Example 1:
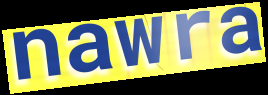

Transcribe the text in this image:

nawra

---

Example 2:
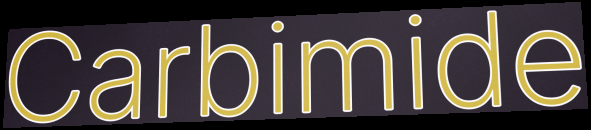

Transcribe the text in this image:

Carbimide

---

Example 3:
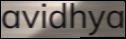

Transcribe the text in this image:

avidhya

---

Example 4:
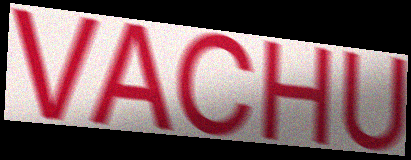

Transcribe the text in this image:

VACHU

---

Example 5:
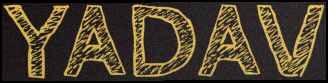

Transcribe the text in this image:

YADAV